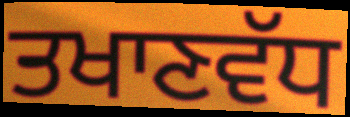
ਤਖਾਣਵੱਧ